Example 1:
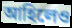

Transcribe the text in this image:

আহিলেও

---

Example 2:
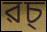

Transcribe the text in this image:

ৱচ্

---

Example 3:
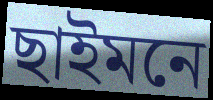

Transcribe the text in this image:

ছাইমনে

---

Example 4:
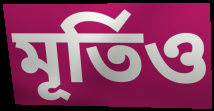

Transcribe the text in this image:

মূৰ্তিও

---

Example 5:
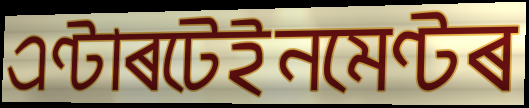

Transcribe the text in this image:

এণ্টাৰটেইনমেণ্টৰ